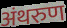
अंथरुण